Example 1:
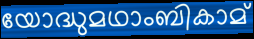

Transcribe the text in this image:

യോദ്ധുമഥാംബികാമ്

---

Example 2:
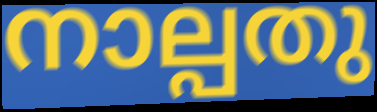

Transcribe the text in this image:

നാല്പതു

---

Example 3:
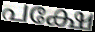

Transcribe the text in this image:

പക്ഷേ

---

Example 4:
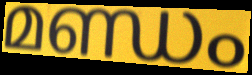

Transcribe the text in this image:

മണ്ഡം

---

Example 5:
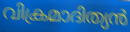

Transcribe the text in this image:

വിക്രമാദിത്യൻ